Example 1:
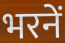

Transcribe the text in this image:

भरनें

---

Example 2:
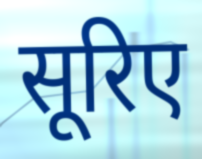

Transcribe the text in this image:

सूरिए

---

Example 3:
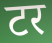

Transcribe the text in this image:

टर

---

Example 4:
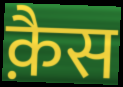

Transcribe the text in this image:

क़ैस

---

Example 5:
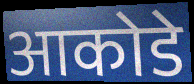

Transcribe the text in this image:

आकोडे